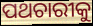
ପଥଚାରୀକୁ